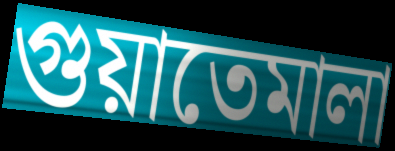
গুয়াতেমালা